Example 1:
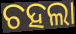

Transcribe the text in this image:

ଚହଲା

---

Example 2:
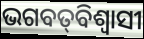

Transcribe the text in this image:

ଭଗବତ୍‌ବିଶ୍ଵାସୀ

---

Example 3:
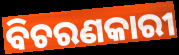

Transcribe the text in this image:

ବିଚରଣକାରୀ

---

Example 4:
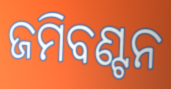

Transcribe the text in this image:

ଜମିବଣ୍ଟନ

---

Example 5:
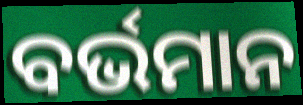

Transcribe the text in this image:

ବର୍ଭମାନ